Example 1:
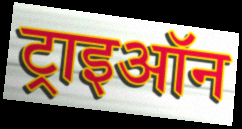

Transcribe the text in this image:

ट्राइऑन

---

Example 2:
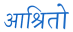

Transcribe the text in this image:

आश्रितो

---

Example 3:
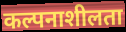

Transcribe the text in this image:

कल्पनाशीलता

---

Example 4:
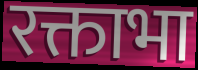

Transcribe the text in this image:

रक्ताभा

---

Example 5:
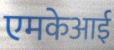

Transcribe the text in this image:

एमकेआई